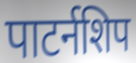
पाटर्नशिप